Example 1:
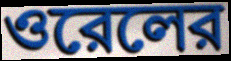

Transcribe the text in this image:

ওরেলের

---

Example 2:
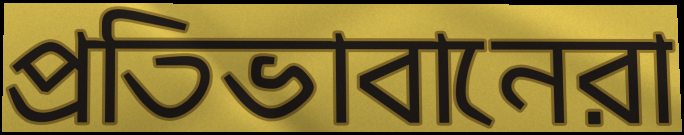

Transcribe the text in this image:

প্রতিভাবানেরা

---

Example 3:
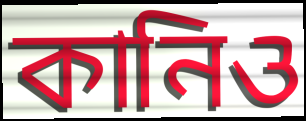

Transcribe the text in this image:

কানিও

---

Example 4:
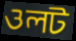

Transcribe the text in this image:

ওলট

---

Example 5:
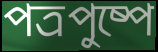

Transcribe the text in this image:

পত্রপুষ্পে